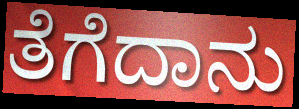
ತೆಗೆದಾನು